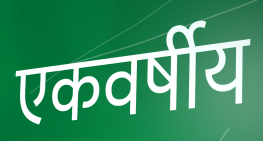
एकवर्षीय